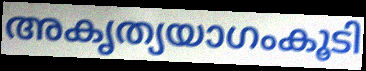
അകൃത്യയാഗംകൂടി